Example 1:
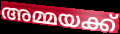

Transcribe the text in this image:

അമ്മയക്ക്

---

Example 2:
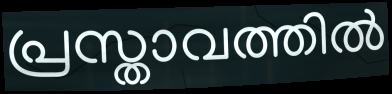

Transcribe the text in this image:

പ്രസ്താവത്തിൽ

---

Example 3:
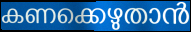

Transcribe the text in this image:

കണക്കെഴുതാൻ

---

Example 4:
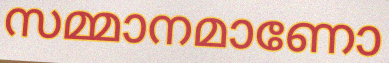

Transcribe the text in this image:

സമ്മാനമാണോ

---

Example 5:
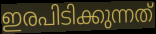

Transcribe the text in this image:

ഇരപിടിക്കുന്നത്